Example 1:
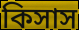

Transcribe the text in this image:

কিসাস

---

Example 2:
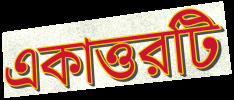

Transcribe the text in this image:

একাত্তরটি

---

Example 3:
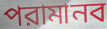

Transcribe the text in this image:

পরামানব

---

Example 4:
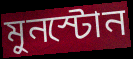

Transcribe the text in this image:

মুনস্টোন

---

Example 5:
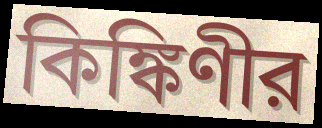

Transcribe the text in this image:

কিঙ্কিণীর